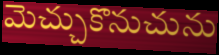
మెచ్చుకొనుచును